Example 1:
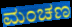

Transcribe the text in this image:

ಮಂಚಣ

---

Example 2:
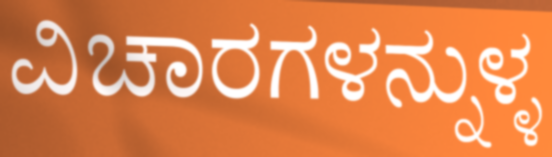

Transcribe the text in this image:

ವಿಚಾರಗಳನ್ನುಳ್ಳ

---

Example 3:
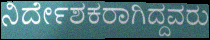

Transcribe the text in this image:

ನಿರ್ದೇಶಕರಾಗಿದ್ದವರು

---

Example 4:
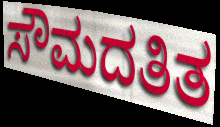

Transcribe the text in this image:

ಸೌಮದತಿತ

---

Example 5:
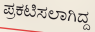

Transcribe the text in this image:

ಪ್ರಕಟಿಸಲಾಗಿದ್ದ